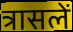
त्रासलें